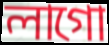
লাগো